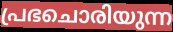
പ്രഭചൊരിയുന്ന